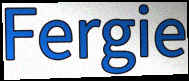
Fergie